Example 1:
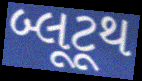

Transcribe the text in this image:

બ્લૂટૂથ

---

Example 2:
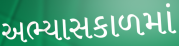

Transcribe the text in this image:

અભ્યાસકાળમાં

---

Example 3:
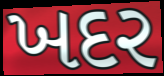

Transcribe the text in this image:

ખદર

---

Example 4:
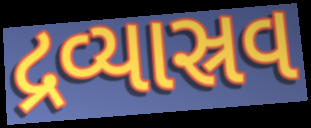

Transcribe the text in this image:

દ્રવ્યાસ્રવ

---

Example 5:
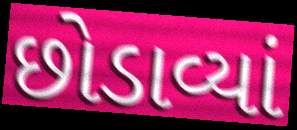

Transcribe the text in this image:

છોડાવ્યાં